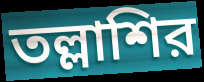
তল্লাশির